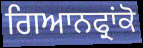
ਗਿਆਨਫ੍ਰਾਂਕੋ